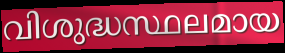
വിശുദ്ധസ്ഥലമായ